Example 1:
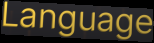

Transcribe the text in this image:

Language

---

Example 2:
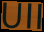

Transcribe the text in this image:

UII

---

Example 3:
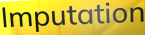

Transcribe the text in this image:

Imputation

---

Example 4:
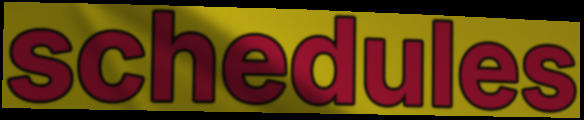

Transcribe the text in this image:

schedules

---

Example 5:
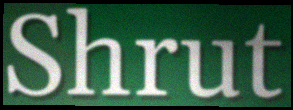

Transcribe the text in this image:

Shrut